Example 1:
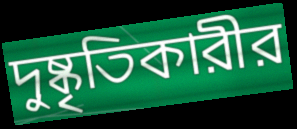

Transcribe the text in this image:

দুষ্কৃতিকারীর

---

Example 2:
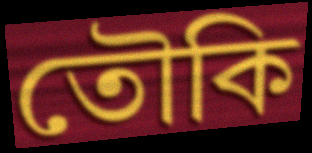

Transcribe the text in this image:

তৌকি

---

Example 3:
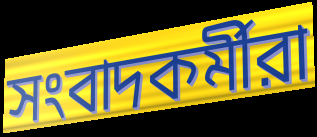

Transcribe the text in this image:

সংবাদকর্মীরা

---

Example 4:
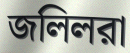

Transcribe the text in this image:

জলিলরা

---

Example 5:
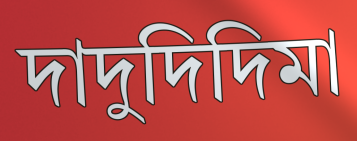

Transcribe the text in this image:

দাদুদিদিমা